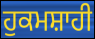
ਹੁਕਮਸ਼ਾਹੀ